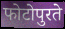
फोटोपुरते